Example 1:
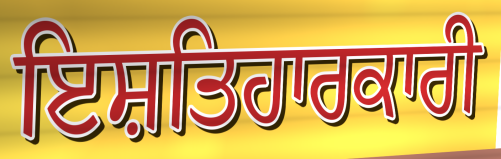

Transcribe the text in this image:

ਇਸ਼ਤਿਹਾਰਕਾਰੀ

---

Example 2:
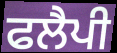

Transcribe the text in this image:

ਫਲੈਪੀ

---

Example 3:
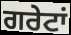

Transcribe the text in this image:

ਗਰੇਟਾਂ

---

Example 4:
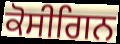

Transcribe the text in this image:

ਕੋਸੀਗਿਨ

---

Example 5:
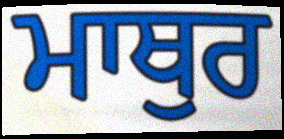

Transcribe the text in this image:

ਮਾਥੁਰ